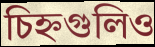
চিহ্নগুলিও